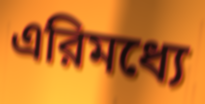
এরিমধ্যে